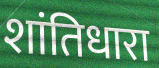
शांतिधारा